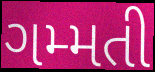
ગમ્મતી